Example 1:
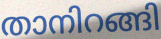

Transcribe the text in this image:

താനിറങ്ങി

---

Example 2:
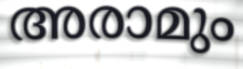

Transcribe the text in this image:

അരാമും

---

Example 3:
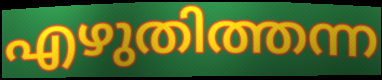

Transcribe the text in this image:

എഴുതിത്തന്ന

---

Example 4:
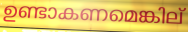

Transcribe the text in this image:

ഉണ്ടാകണമെങ്കില്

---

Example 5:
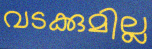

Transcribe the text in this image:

വടക്കുമില്ല